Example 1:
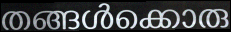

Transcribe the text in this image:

തങ്ങൾക്കൊരു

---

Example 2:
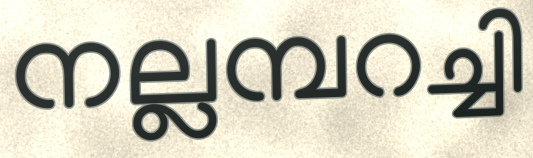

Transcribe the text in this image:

നല്ലമ്പറച്ചി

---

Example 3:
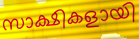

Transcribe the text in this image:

സാക്ഷികളായി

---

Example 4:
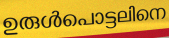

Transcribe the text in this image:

ഉരുൾപൊട്ടലിനെ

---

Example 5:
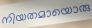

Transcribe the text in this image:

നിയതമായൊരു